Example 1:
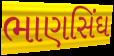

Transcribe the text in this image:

ભાણસિંઘ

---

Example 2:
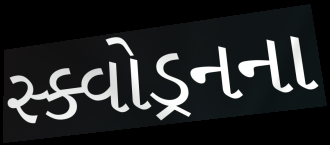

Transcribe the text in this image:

સ્ક્વોડ્રનના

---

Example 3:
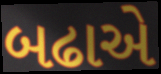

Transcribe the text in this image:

બઢાએ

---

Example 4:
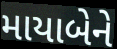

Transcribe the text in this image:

માયાબેને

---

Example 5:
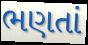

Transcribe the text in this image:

ભણતાં